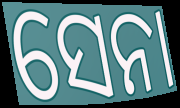
ସେନା